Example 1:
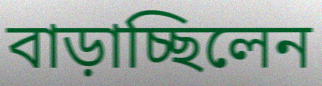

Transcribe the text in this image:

বাড়াচ্ছিলেন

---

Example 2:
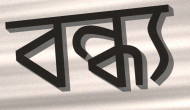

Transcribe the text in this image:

বন্ধ্য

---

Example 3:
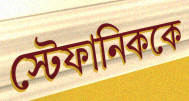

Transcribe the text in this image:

স্টেফানিককে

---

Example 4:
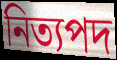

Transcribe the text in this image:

নিত্যপদ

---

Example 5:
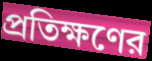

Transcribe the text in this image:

প্রতিক্ষণের